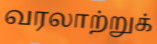
வரலாற்றுக்